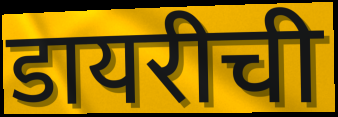
डायरीची